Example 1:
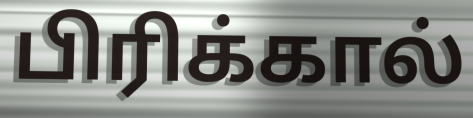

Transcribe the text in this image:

பிரிக்கால்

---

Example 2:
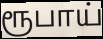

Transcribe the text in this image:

ரூபாய்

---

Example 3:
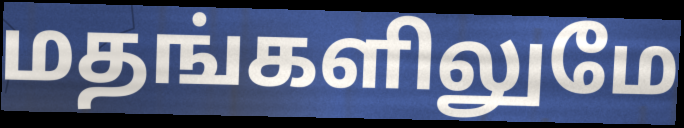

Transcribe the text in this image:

மதங்களிலுமே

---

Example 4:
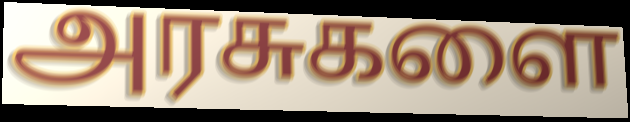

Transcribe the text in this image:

அரசுகளை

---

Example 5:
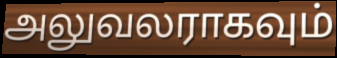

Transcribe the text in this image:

அலுவலராகவும்